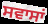
ਸਵਾਸਾਂ